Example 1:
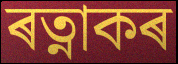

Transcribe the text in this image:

ৰত্নাকৰ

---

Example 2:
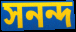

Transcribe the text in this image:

সনন্দ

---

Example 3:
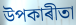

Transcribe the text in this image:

উপকাৰীতা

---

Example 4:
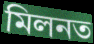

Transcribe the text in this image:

মিলনত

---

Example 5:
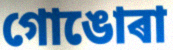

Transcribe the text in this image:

গোঙোৰা